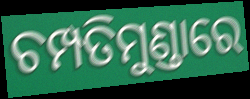
ଚମ୍ପତିମୁଣ୍ଡାରେ